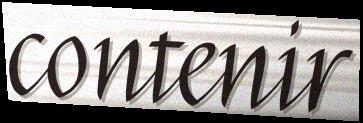
contenir